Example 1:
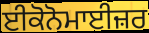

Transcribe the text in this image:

ਈਕੋਨੋਮਾਈਜ਼ਰ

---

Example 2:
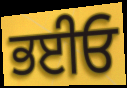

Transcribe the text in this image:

ਭਈਓ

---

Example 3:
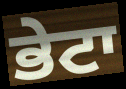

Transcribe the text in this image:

ਭੇਟਾ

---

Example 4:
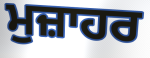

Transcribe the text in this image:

ਮੁਜ਼ਾਹਰ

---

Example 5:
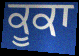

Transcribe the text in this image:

ਕੂਕਾ